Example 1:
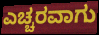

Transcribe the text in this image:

ಎಚ್ಚರವಾಗು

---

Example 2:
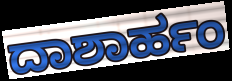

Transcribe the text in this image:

ದಾಶಾರ್ಹಂ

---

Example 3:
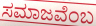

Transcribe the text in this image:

ಸಮಾಜವೆಂಬ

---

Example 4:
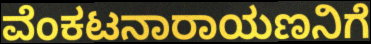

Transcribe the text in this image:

ವೆಂಕಟನಾರಾಯಣನಿಗೆ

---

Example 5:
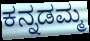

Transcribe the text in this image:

ಕನ್ನಡಮ್ಮ